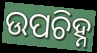
ଉପଚିହ୍ନ